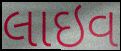
લાઇવ